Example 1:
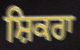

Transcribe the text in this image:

ਸ਼ਿਕਰਾ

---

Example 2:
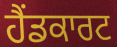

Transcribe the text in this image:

ਹੈਂਡਕਾਰਟ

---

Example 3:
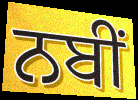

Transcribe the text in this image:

ਨਬੀਂ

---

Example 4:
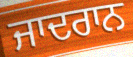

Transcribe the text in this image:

ਜਾਦਰਾਨ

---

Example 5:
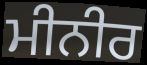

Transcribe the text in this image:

ਮੀਨੀਰ